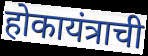
होकायंत्राची